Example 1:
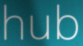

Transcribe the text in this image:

hub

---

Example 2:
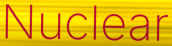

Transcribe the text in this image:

Nuclear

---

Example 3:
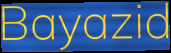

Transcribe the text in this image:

Bayazid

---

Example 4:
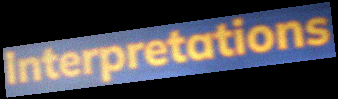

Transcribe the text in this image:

Interpretations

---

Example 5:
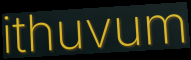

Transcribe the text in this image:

ithuvum